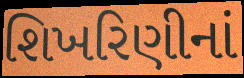
શિખરિણીનાં